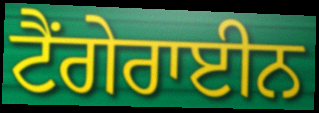
ਟੈਂਗੇਰਾਈਨ